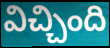
విచ్చింది